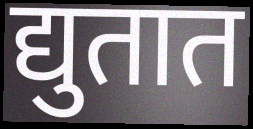
द्युतात